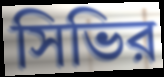
সিভির